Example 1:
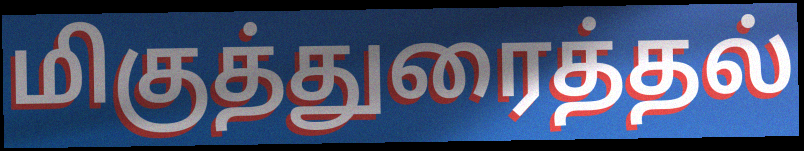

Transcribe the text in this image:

மிகுத்துரைத்தல்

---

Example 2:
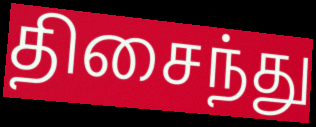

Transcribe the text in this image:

திசைந்து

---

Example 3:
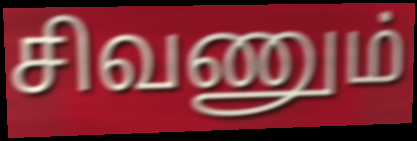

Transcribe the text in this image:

சிவணும்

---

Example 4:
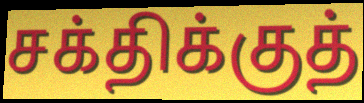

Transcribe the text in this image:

சக்திக்குத்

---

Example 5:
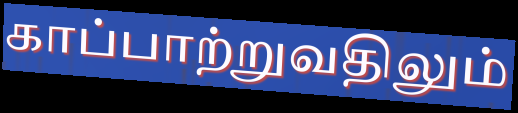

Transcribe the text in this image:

காப்பாற்றுவதிலும்